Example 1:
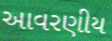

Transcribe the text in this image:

આવરણીય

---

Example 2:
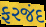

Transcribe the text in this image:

ફરજંદ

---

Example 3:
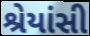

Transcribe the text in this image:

શ્રેયાંસી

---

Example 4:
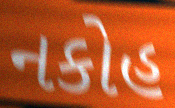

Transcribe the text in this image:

નકોહ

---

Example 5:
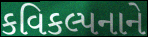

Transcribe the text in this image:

કવિકલ્પનાને